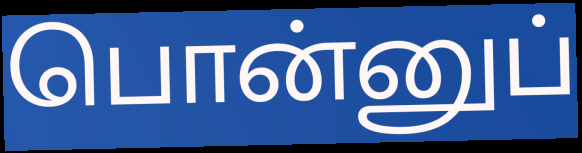
பொன்னுப்